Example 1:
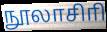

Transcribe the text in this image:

நூலாசிரி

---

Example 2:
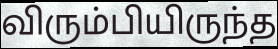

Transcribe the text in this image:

விரும்பியிருந்த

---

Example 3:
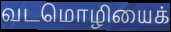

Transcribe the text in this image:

வடமொழியைக்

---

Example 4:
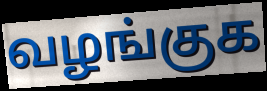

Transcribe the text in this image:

வழங்குக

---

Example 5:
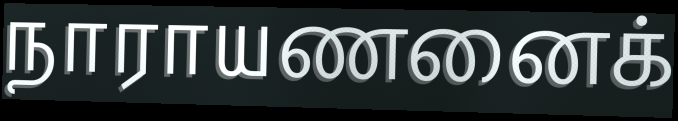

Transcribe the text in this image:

நாராயணனைக்